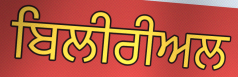
ਬਿਲੀਰੀਅਲ